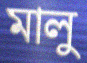
মালু